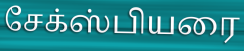
சேக்ஸ்பியரை